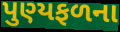
પુણ્યફળના